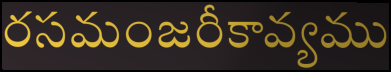
రసమంజరీకావ్యము